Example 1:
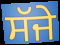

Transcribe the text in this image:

ਸੱਜੇ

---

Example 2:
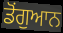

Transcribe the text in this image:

ਡੋਂਗੁਆਨ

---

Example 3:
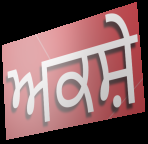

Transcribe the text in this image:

ਅਕਸ਼ੇ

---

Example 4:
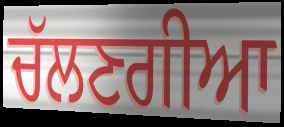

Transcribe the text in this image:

ਚੱਲਣਗੀਆ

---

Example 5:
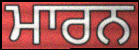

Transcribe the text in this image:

ਮਾਰਨ